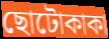
ছোটোকাকা